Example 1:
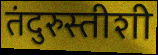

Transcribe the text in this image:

तंदुरुस्तीशी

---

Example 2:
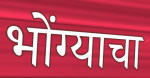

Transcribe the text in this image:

भोंग्याचा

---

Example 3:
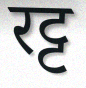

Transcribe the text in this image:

रट्ट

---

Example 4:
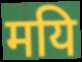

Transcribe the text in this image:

मयि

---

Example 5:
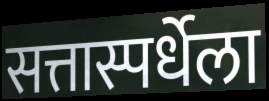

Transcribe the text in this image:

सत्तास्पर्धेला